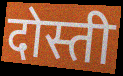
दोस्ती